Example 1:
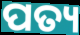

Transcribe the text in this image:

ପତ୍ୟ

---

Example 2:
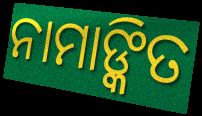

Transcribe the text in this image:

ନାମାଙ୍କିତ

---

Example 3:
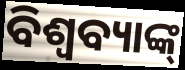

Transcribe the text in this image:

ବିଶ୍ବବ୍ୟାଙ୍କ୍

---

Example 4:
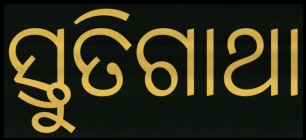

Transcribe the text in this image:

ସ୍ତୁତିଗାଥା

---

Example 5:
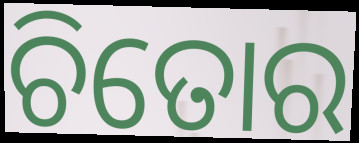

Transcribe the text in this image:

ଚିତୋର